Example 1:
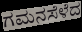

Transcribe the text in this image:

ಗಮನಸೆಳೆದ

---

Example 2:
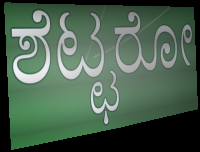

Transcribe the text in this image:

ಶೆಟ್ಟರೋ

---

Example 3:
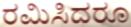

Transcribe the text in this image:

ರಮಿಸಿದರೂ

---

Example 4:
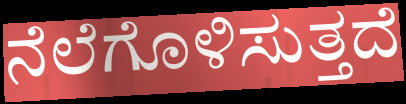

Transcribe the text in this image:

ನೆಲೆಗೊಳಿಸುತ್ತದೆ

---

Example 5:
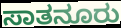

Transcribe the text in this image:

ಸಾತನೂರು